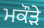
ਮਕੌੜੇ